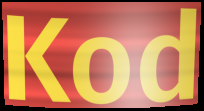
Kod